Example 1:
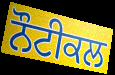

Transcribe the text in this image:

ਨੌਟੀਕਲ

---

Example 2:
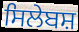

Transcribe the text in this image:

ਸਿਲੇਬਸ਼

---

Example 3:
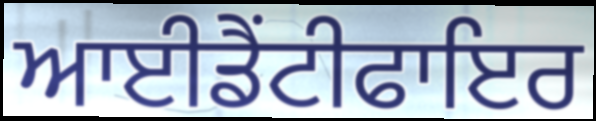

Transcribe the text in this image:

ਆਈਡੈਂਟੀਫਾਇਰ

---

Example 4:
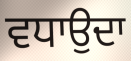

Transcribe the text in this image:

ਵਧਾਉਦਾ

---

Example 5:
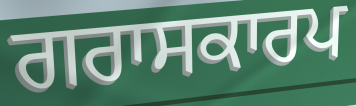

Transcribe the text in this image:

ਗਰਾਸਕਾਰਪ